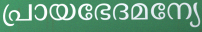
പ്രായഭേദമന്യേ